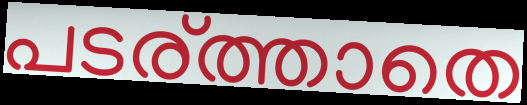
പടര്ത്താതെ